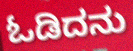
ಓಡಿದನು